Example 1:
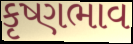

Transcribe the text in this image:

કૃષ્ણભાવ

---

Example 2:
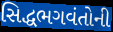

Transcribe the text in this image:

સિદ્ધભગવંતોની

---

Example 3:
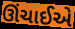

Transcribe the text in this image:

ઊંચાઈએ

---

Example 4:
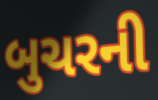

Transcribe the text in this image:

બુચરની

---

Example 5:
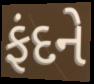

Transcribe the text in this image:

ફંદને